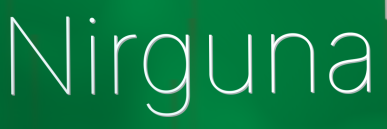
Nirguna